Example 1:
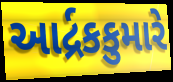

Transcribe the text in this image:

આર્દ્રકકુમારે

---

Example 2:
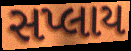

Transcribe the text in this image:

સપ્લાય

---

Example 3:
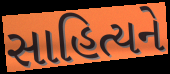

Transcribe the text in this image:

સાહિત્યને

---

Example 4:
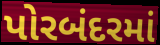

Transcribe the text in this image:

પોરબંદરમાં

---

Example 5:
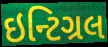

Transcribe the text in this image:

ઇન્ટિગ્રલ